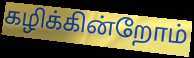
கழிக்கின்றோம்